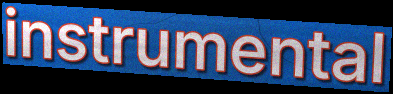
instrumental